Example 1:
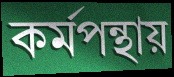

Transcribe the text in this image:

কর্মপন্থায়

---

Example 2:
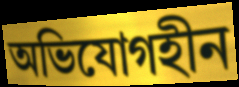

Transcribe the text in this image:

অভিযোগহীন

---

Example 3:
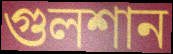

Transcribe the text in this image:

গুলশান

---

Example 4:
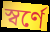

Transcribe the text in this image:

স্বর্ণে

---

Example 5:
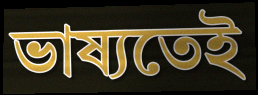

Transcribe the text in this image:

ভাষ্যতেই